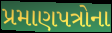
પ્રમાણપત્રોના